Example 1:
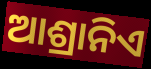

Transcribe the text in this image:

ଆଶ୍ରାନିଏ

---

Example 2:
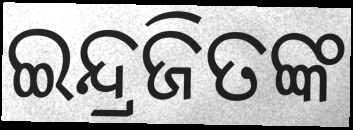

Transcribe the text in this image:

ଇନ୍ଦ୍ରଜିତଙ୍କ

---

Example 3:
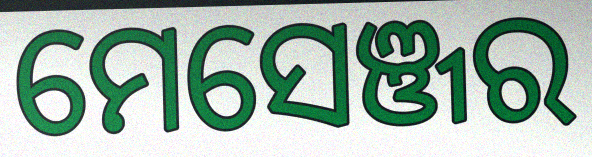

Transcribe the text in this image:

ମେସେଞ୍ଜର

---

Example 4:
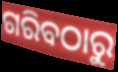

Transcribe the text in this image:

ଗରିବଠାରୁ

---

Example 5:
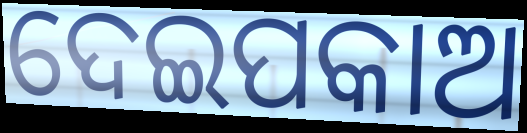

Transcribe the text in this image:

ଦେଇପକାଅ